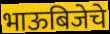
भाऊबिजेचे